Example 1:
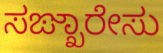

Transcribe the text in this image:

ಸಙ್ಖಾರೇಸು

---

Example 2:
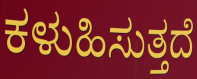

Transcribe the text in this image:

ಕಳುಹಿಸುತ್ತದೆ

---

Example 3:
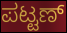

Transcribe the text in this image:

ಪಟ್ಟಣ್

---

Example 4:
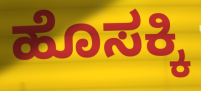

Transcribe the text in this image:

ಹೊಸಕ್ಕಿ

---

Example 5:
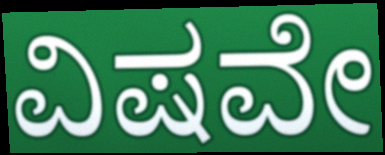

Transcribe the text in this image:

ವಿಷವೇ